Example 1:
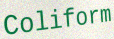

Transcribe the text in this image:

Coliform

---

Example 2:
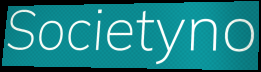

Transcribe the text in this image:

Societyno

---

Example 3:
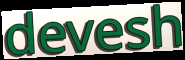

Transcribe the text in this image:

devesh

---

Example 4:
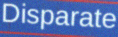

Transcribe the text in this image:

Disparate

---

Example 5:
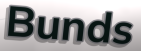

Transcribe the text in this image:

Bunds